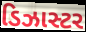
ડિઝાસ્ટર